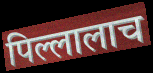
पिल्लालाच